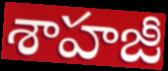
శాహజీ